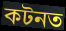
কটনত